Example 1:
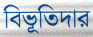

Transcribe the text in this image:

বিভূতিদার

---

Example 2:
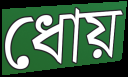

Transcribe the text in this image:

ধোয়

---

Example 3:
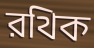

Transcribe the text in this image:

রথিক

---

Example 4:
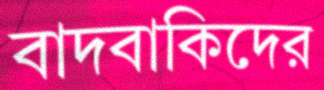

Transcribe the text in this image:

বাদবাকিদের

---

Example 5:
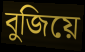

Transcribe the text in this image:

বুজিয়ে